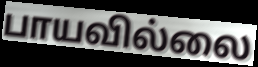
பாயவில்லை